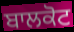
ਬਾਲਕੋਟ